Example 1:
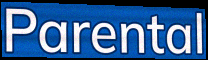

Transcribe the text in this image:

Parental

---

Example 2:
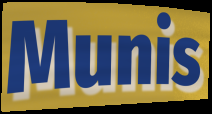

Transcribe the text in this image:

Munis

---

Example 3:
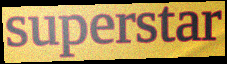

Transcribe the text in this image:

superstar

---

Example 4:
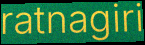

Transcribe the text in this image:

ratnagiri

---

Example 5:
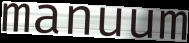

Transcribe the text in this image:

manuum